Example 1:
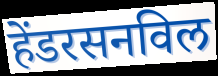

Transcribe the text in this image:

हेंडरसनविल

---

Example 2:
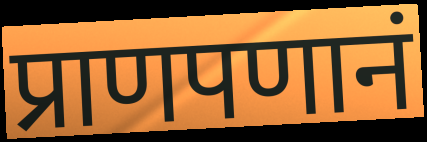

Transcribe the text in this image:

प्राणपणानं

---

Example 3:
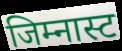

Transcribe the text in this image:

जिम्नास्ट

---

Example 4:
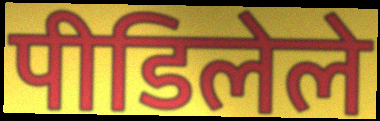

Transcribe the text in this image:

पीडिलेले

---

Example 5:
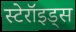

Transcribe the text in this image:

स्टेरॉइड्स